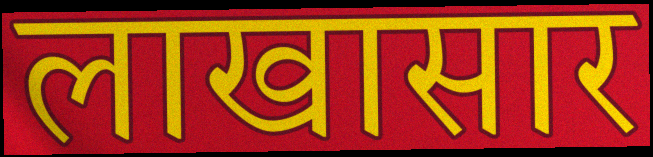
लाखासार